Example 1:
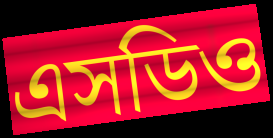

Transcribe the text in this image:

এসডিও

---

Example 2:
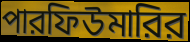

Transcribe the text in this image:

পারফিউমারির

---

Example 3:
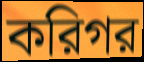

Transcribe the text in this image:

করিগর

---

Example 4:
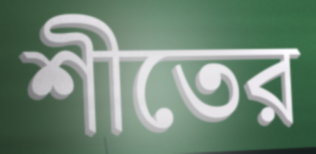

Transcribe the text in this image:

শীতের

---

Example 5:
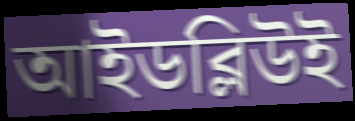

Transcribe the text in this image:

আইডব্লিউই